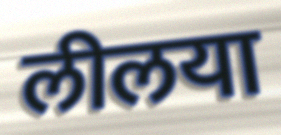
लीलया